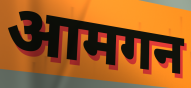
आमगन